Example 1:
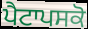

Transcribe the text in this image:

ਪੈਟਾਪਸਕੋ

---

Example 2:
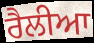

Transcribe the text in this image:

ਰੈਲੀਆ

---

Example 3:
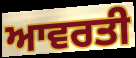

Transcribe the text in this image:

ਆਵਰਤੀ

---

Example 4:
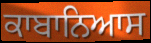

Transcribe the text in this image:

ਕਾਬਾਨਿਆਸ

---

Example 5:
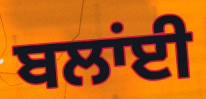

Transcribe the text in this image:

ਬਲਾਂਈ